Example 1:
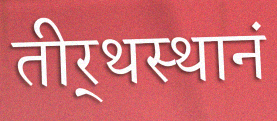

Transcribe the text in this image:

तीर्थस्थानं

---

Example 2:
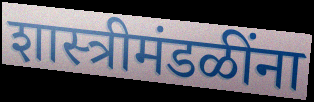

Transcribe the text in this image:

शास्त्रीमंडळींना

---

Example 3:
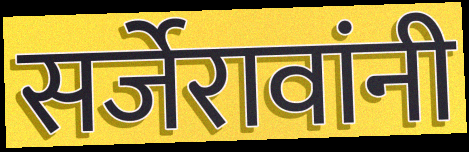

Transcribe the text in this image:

सर्जेरावांनी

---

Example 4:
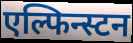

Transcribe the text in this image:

एल्फिन्स्टन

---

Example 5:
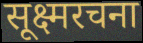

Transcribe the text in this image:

सूक्ष्मरचना